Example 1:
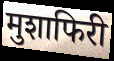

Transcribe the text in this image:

मुशाफिरी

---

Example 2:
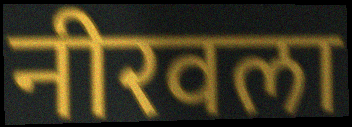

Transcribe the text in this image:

नीरवला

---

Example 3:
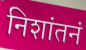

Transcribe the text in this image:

निशांतनं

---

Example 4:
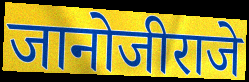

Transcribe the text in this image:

जानोजीराजे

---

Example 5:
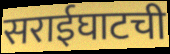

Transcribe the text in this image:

सराईघाटची